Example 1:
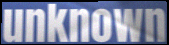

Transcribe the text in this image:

unknown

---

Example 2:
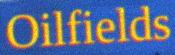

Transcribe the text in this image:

Oilfields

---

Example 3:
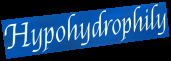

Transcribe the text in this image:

Hypohydrophily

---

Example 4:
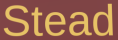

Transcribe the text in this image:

Stead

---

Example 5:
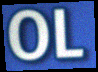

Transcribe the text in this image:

OL